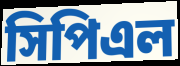
সিপিএল